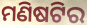
ମଣିଷଟିର